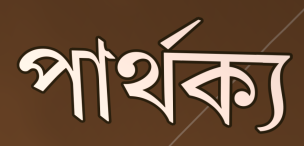
পাৰ্থক্য